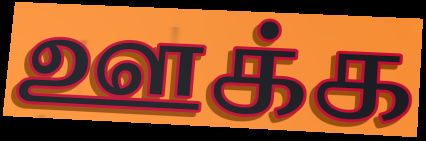
ஊக்க